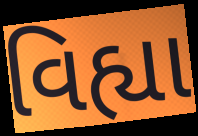
વિહ્યા